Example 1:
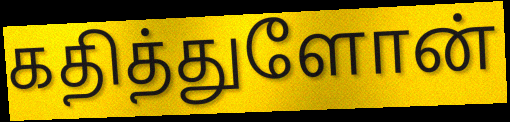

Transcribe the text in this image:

கதித்துளோன்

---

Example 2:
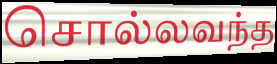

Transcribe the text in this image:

சொல்லவந்த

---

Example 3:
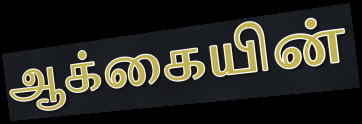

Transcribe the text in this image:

ஆக்கையின்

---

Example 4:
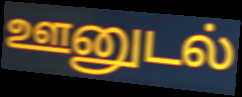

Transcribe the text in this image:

ஊனுடல்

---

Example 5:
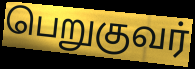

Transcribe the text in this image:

பெறுகுவர்